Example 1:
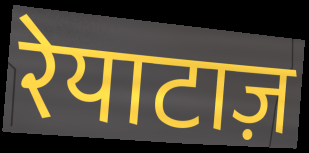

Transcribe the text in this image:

रेयाटाज़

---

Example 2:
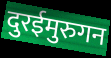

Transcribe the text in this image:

दुरईमुरुगन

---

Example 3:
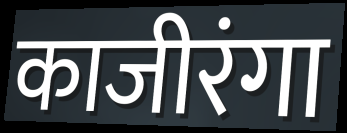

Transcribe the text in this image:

काजीरंगा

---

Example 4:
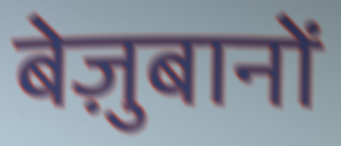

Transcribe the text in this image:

बेज़ुबानों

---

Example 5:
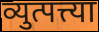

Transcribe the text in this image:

व्युत्पत्त्या